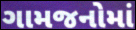
ગામજનોમાં